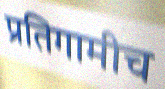
प्रतिगामीच